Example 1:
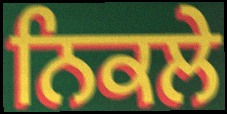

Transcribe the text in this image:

ਨਿਕਲੇ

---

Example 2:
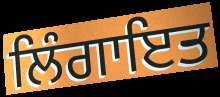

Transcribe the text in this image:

ਲਿੰਗਾਇਤ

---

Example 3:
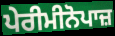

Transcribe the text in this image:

ਪੇਰੀਮੀਨੋਪਾਜ਼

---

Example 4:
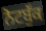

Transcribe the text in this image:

ਨੋਟਬੁੱਕ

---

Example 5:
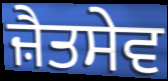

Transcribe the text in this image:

ਜ਼ੈਤਸੇਵ